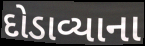
દોડાવ્યાના